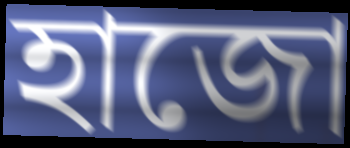
হাজো